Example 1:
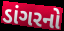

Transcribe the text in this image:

ડાંગરનો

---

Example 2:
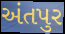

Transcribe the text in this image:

અંતપુર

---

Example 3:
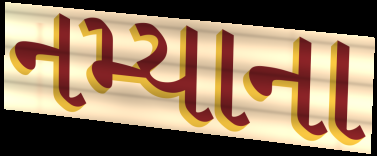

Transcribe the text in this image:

નમ્યાના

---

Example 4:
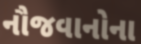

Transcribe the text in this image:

નૌજવાનોના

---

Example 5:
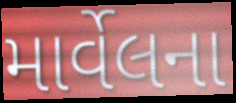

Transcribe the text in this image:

માર્વેલના